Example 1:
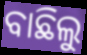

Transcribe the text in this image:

ବାଛିଲୁ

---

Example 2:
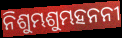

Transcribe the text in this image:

ନିଶୁମ୍ଭଶୁମ୍ଭହନନୀ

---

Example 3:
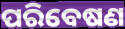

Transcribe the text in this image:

ପରିବେଷଣ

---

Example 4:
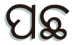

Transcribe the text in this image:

ପଛ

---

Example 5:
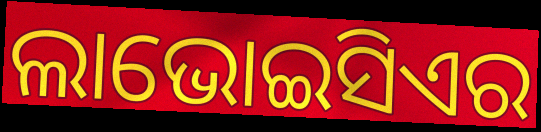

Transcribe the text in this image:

ଲାଭୋଇସିଏର